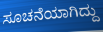
ಸೂಚನೆಯಾಗಿದ್ದು